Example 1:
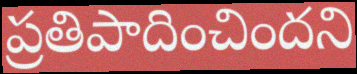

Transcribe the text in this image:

ప్రతిపాదించిందని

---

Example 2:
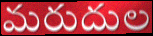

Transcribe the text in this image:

మరుదుల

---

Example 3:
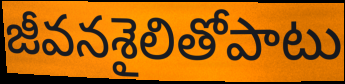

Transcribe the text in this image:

జీవనశైలితోపాటు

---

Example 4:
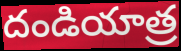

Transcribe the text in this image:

దండియాత్ర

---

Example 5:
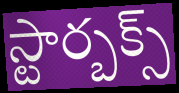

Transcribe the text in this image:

స్టార్బక్స్